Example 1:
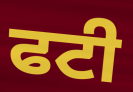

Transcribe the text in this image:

ਫਟੀ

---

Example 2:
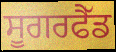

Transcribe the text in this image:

ਸੂਗਰਫੈੱਡ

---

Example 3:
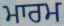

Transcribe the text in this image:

ਮਾਰਮ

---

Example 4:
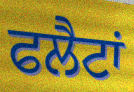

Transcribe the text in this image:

ਫਲੈਟਾਂ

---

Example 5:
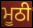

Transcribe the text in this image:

ਮੂਠੀ